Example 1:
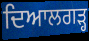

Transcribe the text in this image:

ਦਿਆਲਗੜ੍ਹ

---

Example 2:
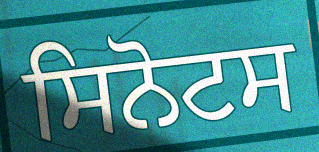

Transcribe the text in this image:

ਸਿਨੋਟਸ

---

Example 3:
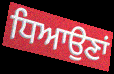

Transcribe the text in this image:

ਧਿਆਉਣਾਂ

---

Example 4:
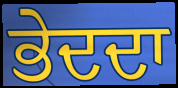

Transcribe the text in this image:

ਭੇਦਦਾ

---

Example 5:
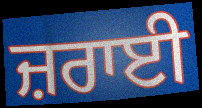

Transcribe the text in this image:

ਜ਼ਰਾਈ